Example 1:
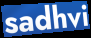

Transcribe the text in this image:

sadhvi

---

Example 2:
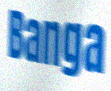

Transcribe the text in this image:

Banga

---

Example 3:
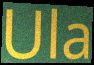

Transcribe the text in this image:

Ula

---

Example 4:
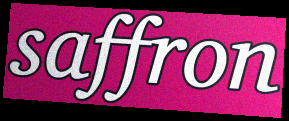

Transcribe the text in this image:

saffron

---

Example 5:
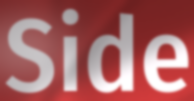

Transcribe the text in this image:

Side